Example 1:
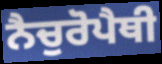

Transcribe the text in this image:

ਨੈਚੁਰੋਪੈਥੀ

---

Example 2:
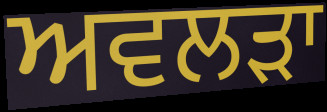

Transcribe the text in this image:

ਅਵਲੜਾ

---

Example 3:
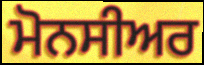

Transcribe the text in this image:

ਮੋਨਸੀਅਰ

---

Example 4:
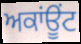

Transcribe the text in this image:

ਅਕਾਂਊਂਟ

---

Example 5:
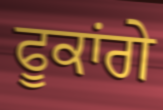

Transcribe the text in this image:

ਫੂਕਾਂਗੇ